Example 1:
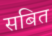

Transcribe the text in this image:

सबित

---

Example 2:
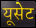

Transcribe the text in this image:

यूसेट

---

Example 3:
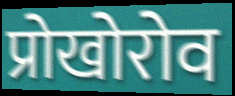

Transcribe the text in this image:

प्रोखोरोव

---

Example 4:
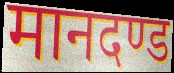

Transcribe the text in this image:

मानदण्ड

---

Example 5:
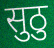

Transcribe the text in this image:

सुठु